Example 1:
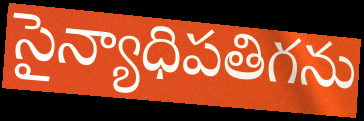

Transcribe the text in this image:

సైన్యాధిపతిగను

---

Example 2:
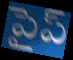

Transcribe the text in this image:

పైప్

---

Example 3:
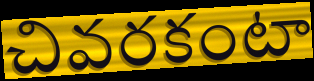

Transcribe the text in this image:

చివరకంటా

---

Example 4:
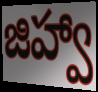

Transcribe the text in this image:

జిహ్వా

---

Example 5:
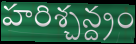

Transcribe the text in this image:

హరిశ్చన్ద్రం